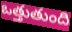
ఒత్తుతుంది